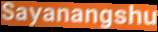
Sayanangshu